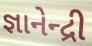
જ્ઞાનેન્દ્રી